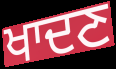
ਖਾਦਣ